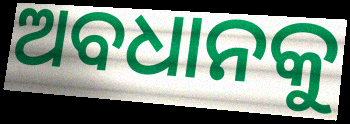
ଅବଧାନକୁ